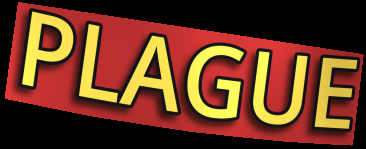
PLAGUE